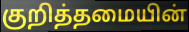
குறித்தமையின்